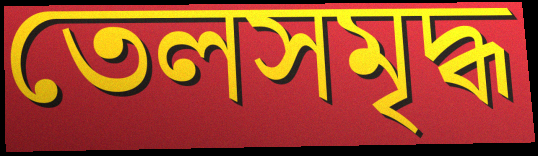
তেলসমৃদ্ধ